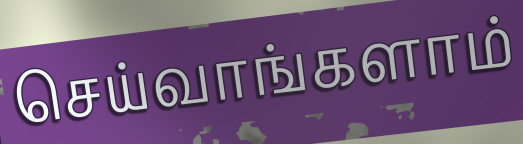
செய்வாங்களாம்